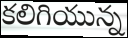
కలిగియున్న